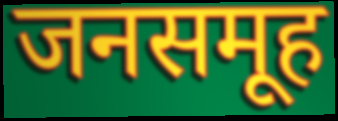
जनसमूह